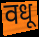
वधू